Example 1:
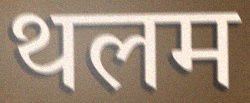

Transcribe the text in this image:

थलम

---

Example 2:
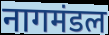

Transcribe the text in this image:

नागमंडल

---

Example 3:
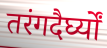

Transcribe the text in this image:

तरंगदैर्घ्यों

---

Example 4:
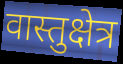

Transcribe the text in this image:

वास्तुक्षेत्र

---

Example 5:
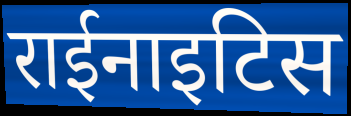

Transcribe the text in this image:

राईनाइटिस